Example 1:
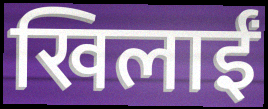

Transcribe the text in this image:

खिलाईं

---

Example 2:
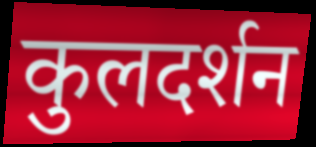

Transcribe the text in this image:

कुलदर्शन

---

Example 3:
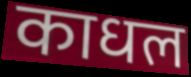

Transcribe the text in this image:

काधल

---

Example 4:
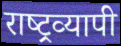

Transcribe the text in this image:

राष्‍ट्रव्‍यापी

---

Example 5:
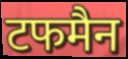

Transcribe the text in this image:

टफमैन